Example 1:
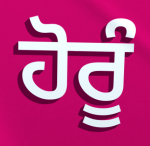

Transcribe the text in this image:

ਹੋਰੂੰ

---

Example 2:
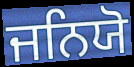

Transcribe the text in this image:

ਜਨਿਯੋ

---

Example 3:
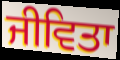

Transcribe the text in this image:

ਜੀਵਿਤਾ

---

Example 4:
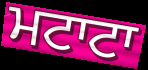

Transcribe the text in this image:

ਮਟਾਟਾ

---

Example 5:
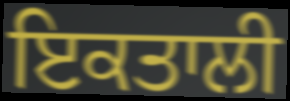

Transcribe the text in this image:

ਇਕਤਾਲੀ